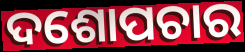
ଦଶୋପଚାର